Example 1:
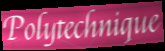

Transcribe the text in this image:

Polytechnique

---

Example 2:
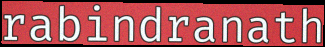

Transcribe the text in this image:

rabindranath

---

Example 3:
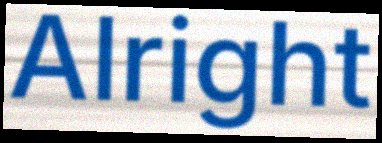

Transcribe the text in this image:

Alright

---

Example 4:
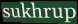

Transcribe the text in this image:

sukhrup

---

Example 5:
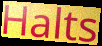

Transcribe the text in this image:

Halts